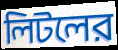
লিটলের